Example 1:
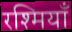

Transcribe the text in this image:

रश्मियाँ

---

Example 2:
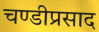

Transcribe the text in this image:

चण्डीप्रसाद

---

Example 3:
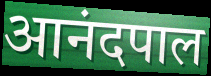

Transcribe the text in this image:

आनंदपाल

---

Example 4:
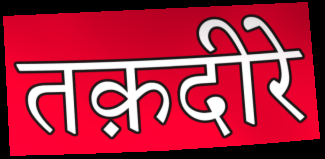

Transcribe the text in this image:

तक़दीरे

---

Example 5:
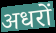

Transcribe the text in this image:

अधरों